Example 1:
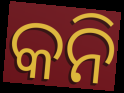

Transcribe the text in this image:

କନି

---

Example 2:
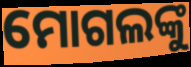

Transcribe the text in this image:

ମୋଗଲଙ୍କୁ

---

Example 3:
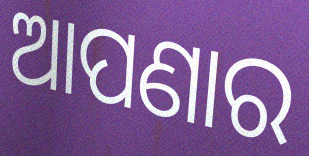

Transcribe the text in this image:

ଆପଣାର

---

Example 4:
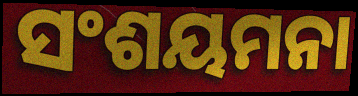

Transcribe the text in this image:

ସଂଶୟମନା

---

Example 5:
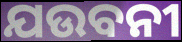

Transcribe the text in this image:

ଯଉବନୀ